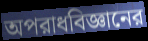
অপরাধবিজ্ঞানের